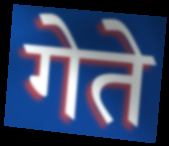
गेते